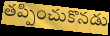
తప్పించుకొనడు